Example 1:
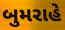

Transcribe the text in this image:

બુમરાહે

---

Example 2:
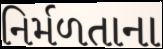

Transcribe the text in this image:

નિર્મળતાના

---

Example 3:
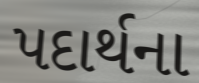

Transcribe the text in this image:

પદાર્થના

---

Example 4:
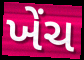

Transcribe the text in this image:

ખેંચ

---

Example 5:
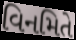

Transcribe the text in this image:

વિનમિતે